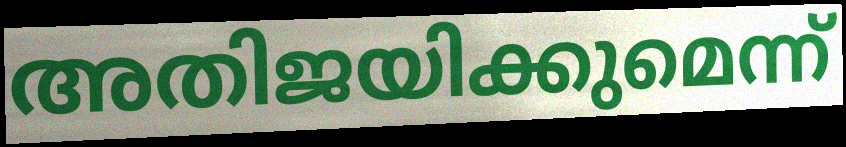
അതിജയിക്കുമെന്ന്